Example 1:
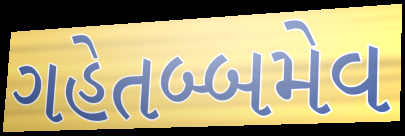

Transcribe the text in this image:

ગહેતબ્બમેવ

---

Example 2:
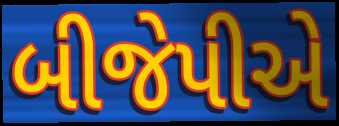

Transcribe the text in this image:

બીજેપીએ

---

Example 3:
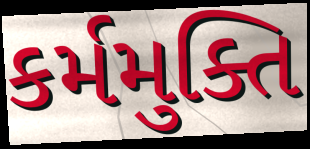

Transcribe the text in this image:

કર્મમુક્તિ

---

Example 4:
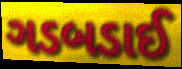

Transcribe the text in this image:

ગડબડાઈ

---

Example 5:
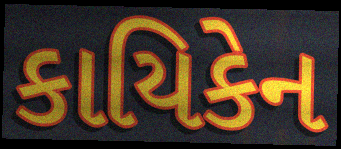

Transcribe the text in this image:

કાયિકેન